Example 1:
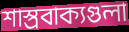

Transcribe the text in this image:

শাস্ত্রবাক্যগুলা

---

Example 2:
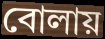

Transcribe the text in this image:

বোলায়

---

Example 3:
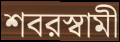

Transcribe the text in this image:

শবরস্বামী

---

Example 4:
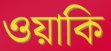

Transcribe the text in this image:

ওয়াকি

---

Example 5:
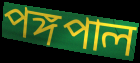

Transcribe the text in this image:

পঙ্গপাল